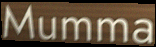
Mumma